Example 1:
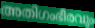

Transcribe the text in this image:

അതിഗംഭീരവും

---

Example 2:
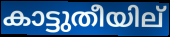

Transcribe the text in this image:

കാട്ടുതീയില്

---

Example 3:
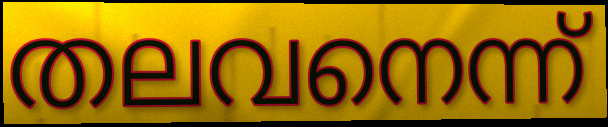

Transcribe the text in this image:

തലവനെന്ന്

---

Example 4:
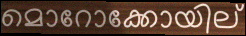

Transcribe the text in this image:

മൊറോക്കോയില്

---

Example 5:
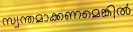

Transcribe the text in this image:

സ്വന്തമാക്കണമെങ്കിൽ